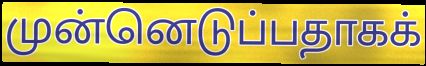
முன்னெடுப்பதாகக்